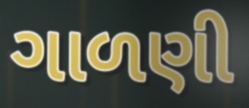
ગાળણી